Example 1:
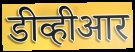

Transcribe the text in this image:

डीव्हीआर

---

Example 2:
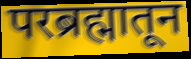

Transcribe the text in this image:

परब्रह्मातून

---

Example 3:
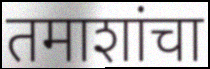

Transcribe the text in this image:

तमाशांचा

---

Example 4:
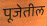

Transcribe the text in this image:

पूजेतील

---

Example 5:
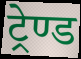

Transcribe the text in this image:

ट्रेण्ड